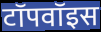
टॉपवॉइस